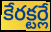
కేరక్టర్లే